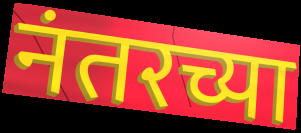
नंतरच्या